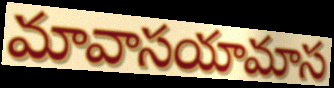
మావాసయామాస